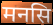
मनसि